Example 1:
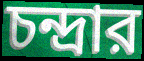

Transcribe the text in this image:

চন্দ্রার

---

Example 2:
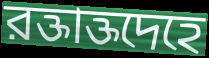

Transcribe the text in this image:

রক্তাক্তদেহে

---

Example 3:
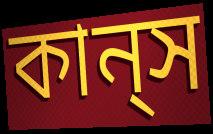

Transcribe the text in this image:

কান্‌স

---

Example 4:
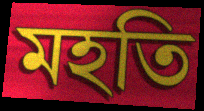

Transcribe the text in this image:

মহতি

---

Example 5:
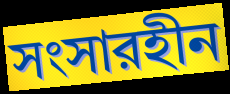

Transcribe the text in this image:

সংসারহীন